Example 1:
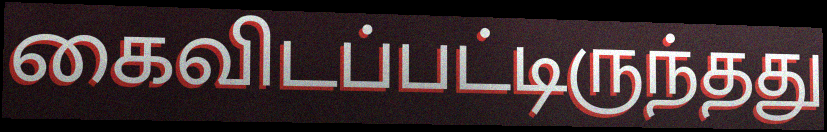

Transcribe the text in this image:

கைவிடப்பட்டிருந்தது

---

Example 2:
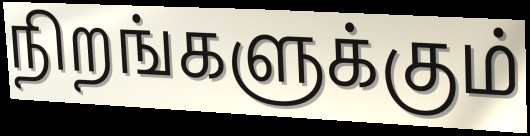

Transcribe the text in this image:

நிறங்களுக்கும்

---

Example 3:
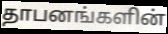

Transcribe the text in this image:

தாபனங்களின்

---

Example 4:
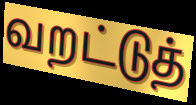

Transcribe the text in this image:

வறட்டுத்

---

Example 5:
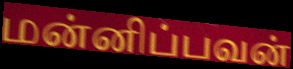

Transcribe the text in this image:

மன்னிப்பவன்